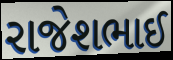
રાજેશભાઈ